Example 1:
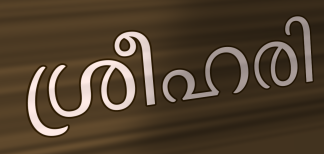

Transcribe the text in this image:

ശ്രീഹരി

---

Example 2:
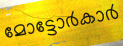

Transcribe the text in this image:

മോട്ടോർകാർ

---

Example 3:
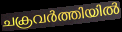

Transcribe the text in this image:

ചക്രവർത്തിയിൽ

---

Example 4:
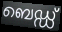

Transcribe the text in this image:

ബെഡ്ഡ്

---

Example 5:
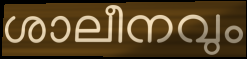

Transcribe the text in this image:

ശാലീനവും